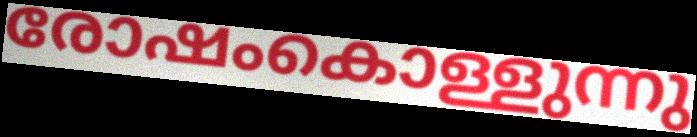
രോഷംകൊള്ളുന്നു